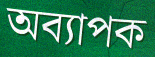
অব্যাপক